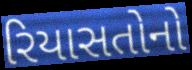
રિયાસતોનો